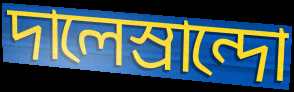
দালেস্রান্দো